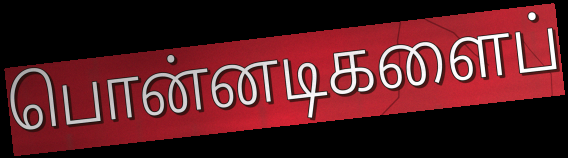
பொன்னடிகளைப்